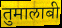
तुमालाबी